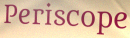
Periscope